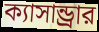
ক্যাসান্ড্রার